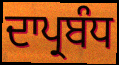
ਦਾਪ੍ਰਬੰਧ